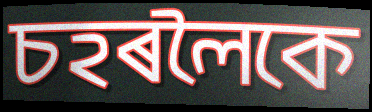
চহৰলৈকে